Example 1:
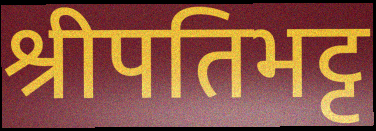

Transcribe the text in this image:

श्रीपतिभट्ट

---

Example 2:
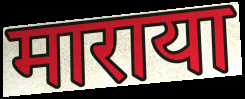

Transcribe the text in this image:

माराया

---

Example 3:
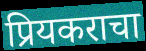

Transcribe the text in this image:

प्रियकराचा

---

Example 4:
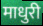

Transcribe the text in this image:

माधुरी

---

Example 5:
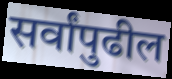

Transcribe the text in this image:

सर्वांपुढील